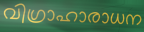
വിഗ്രാഹാരാധന